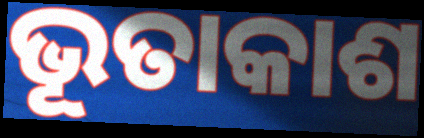
ଭୂତାକାଶ